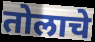
तोलाचे